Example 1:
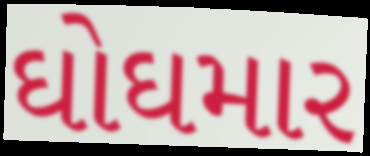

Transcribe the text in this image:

ઘોઘમાર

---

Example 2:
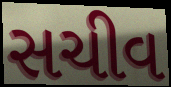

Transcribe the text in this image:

સચીવ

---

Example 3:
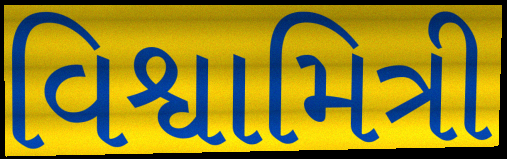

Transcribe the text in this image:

વિશ્વામિત્રી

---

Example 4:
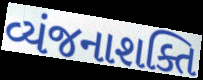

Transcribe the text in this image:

વ્યંજનાશક્તિ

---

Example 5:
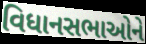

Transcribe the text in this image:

વિધાનસભાઓને